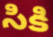
సికి